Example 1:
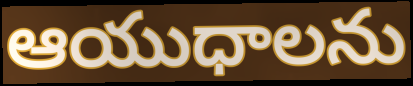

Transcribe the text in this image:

ఆయుధాలను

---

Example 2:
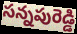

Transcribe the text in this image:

సన్నపురెడ్డి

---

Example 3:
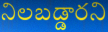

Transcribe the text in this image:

నిలబడ్డారని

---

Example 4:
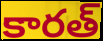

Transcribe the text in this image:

కారత్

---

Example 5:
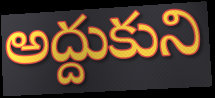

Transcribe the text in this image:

అద్దుకుని